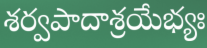
శర్వపాదాశ్రయేభ్యః